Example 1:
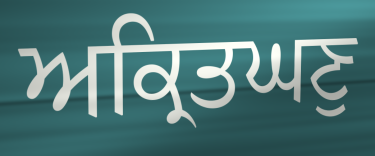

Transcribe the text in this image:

ਅਕ੍ਰਿਤਘਣੁ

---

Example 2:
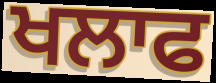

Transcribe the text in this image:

ਖਲਾਫ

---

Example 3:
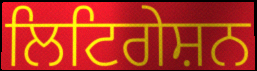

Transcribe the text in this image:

ਲਿਟਿਗੇਸ਼ਨ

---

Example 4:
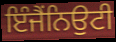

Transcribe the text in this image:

ਇੰਜੈਂਨਿਉਟੀ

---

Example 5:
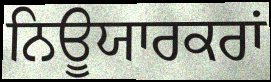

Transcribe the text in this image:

ਨਿਊਯਾਰਕਰਾਂ